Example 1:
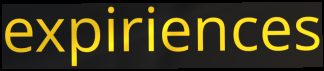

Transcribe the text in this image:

expiriences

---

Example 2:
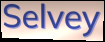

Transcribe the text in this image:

Selvey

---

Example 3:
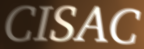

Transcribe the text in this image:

CISAC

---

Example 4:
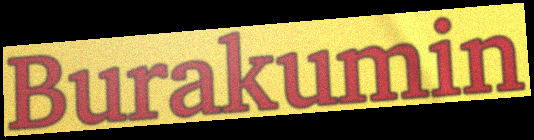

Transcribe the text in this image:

Burakumin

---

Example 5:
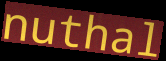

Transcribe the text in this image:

nuthal